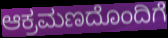
ಆಕ್ರಮಣದೊಂದಿಗೆ